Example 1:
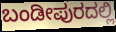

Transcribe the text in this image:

ಬಂಡೀಪುರದಲ್ಲಿ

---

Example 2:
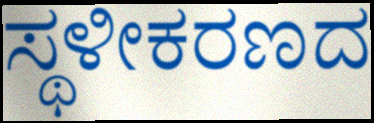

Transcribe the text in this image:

ಸ್ಥಳೀಕರಣದ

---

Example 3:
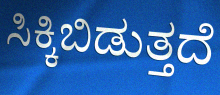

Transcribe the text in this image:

ಸಿಕ್ಕಿಬಿಡುತ್ತದೆ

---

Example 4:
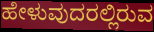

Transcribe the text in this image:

ಹೇಳುವುದರಲ್ಲಿರುವ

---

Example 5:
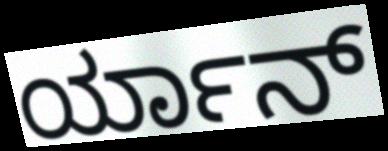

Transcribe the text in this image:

ರ್ಯಾನ್